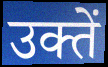
उक्तें